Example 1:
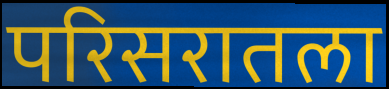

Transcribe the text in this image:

परिसरातला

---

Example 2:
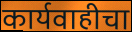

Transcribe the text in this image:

कार्यवाहीचा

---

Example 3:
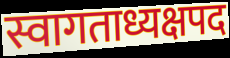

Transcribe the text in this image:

स्वागताध्यक्षपद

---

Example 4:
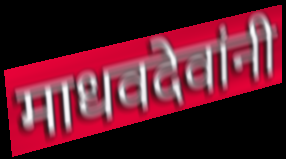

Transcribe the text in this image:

माधवदेवांनी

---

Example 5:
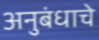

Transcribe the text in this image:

अनुबंधाचे